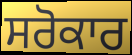
ਸਰੋਕਾਰ